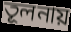
তূলনায়